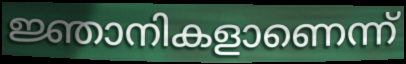
ജ്ഞാനികളാണെന്ന്